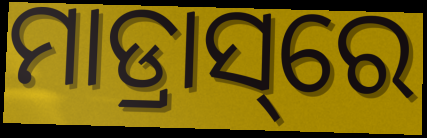
ମାଡ୍ରାସ୍‌ରେ